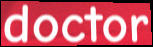
doctor